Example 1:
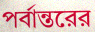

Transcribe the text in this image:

পর্বান্তরের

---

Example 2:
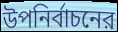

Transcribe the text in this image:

উপনির্বাচনের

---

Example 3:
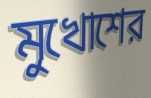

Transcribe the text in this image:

মুখোশের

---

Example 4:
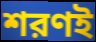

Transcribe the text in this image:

শরণই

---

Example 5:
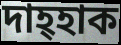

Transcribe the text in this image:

দাহ্হাক